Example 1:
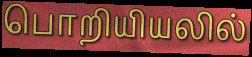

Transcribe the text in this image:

பொறியியலில்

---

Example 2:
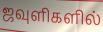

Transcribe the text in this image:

ஜவுளிகளில்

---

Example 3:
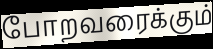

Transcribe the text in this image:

போறவரைக்கும்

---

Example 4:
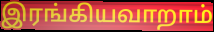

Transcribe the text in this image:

இரங்கியவாறாம்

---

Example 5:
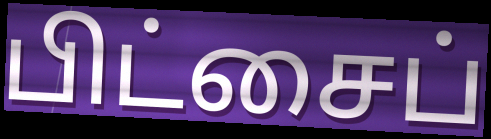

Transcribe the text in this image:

பிட்சைப்